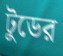
টুডের